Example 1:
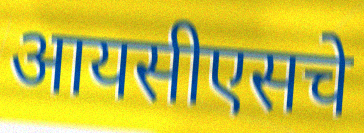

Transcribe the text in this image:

आयसीएसचे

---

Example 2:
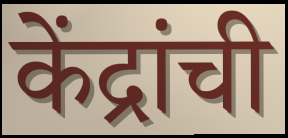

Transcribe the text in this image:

केंद्रांची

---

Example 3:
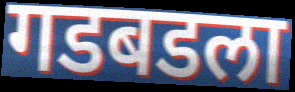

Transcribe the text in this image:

गडबडला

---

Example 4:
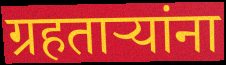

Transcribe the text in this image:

ग्रहताऱ्यांना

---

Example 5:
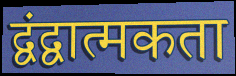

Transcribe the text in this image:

द्वंद्वात्मकता